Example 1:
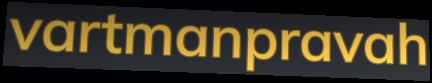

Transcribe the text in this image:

vartmanpravah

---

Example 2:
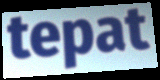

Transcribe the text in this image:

tepat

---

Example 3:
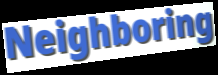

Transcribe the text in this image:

Neighboring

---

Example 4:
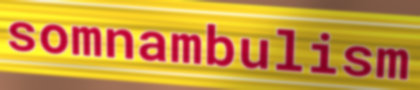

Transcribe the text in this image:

somnambulism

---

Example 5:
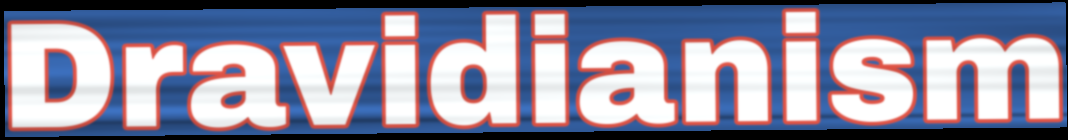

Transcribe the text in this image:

Dravidianism